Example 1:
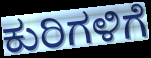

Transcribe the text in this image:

ಕುರಿಗಳಿಗೆ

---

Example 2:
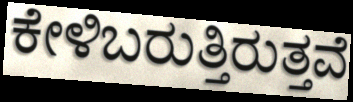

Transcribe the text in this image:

ಕೇಳಿಬರುತ್ತಿರುತ್ತವೆ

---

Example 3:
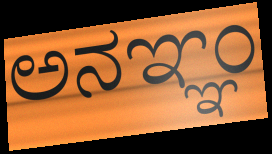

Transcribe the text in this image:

ಅನಞ್ಞಂ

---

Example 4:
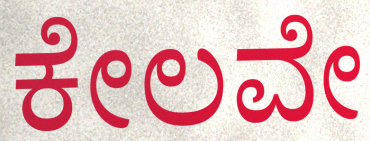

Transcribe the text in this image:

ಕೇಲವೇ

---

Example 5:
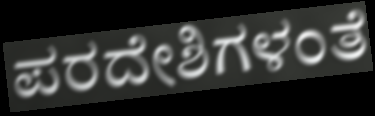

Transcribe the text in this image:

ಪರದೇಶಿಗಳಂತೆ